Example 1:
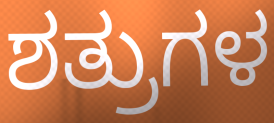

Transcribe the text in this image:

ಶತ್ರುಗಳ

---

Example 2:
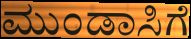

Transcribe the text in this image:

ಮುಂಡಾಸಿಗೆ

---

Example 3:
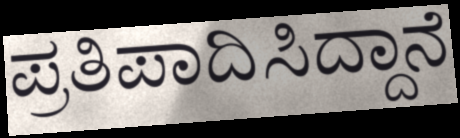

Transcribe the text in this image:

ಪ್ರತಿಪಾದಿಸಿದ್ದಾನೆ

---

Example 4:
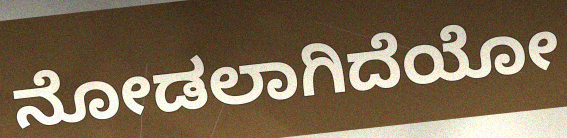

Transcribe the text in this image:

ನೋಡಲಾಗಿದೆಯೋ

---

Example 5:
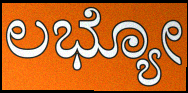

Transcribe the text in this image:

ಲಭ್ಯೋ